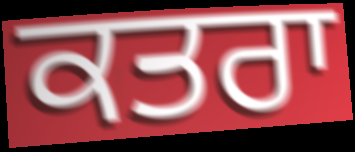
ਕਤਰਾ